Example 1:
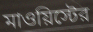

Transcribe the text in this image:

মাওয়িস্টের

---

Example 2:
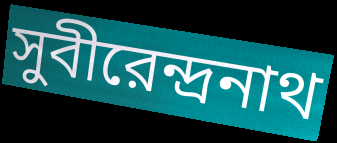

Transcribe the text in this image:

সুবীরেন্দ্রনাথ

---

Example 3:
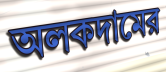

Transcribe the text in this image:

অলকদামের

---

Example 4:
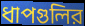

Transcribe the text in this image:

ধাপগুলির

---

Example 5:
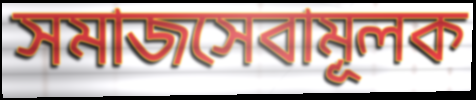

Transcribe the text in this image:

সমাজসেবামূলক